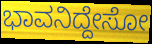
ಭಾವನಿದ್ದೇಸೋ